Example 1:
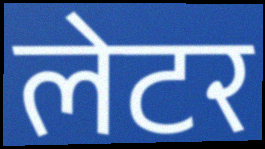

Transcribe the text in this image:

लेटर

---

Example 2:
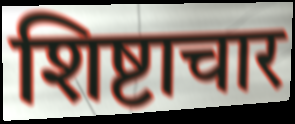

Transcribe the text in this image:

शिष्टाचार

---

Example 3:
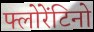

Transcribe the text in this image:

फ्लोरेंटिनो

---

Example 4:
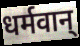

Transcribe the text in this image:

धर्मवान्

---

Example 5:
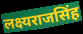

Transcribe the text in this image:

लक्ष्यराजसिंह